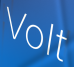
Volt